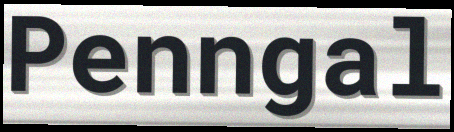
Penngal